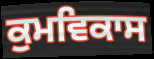
ਕੁਮਵਿਕਾਸ